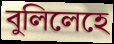
বুলিলেহে